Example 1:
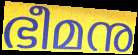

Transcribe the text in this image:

ഭീമനു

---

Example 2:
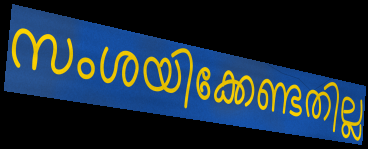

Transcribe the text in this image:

സംശയിക്കേണ്ടതില്ല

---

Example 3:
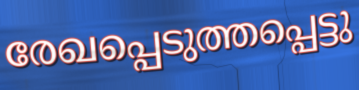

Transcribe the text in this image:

രേഖപ്പെടുത്തപ്പെട്ടു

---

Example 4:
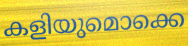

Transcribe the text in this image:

കളിയുമൊക്കെ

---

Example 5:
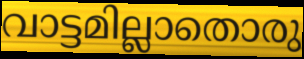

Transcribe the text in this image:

വാട്ടമില്ലാതൊരു